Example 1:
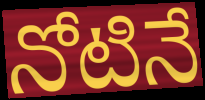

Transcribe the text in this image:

నోటినే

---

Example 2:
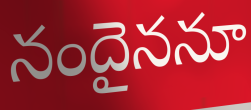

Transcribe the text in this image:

నందైననూ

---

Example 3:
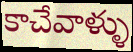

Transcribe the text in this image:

కాచేవాళ్ళు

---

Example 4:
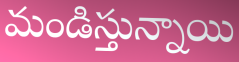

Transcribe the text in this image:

మండిస్తున్నాయి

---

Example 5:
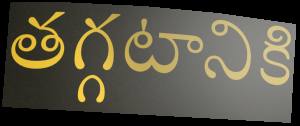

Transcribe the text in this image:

తగ్గటానికి